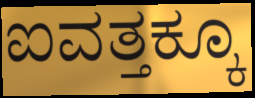
ಐವತ್ತಕ್ಕೂ